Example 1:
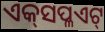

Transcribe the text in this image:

ଏକ୍‍ସପ୍ଳଏଟ୍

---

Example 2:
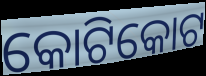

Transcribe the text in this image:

କୋଟିକୋଟ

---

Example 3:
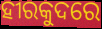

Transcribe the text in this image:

ହୀରକୁଦରେ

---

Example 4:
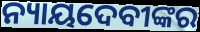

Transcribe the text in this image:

ନ୍ୟାୟଦେବୀଙ୍କର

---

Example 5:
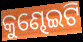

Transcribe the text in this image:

କୁଣ୍ଢେଇଟି